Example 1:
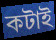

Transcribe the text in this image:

কটাই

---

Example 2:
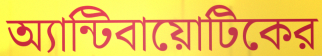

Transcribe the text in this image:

অ্যান্টিবায়োটিকের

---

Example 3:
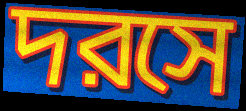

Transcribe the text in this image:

দরসে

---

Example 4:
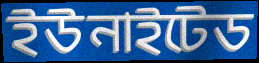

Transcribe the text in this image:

ইউনাইটেড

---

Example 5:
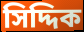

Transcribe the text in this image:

সিদ্দিক